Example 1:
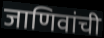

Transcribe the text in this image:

जाणिवांची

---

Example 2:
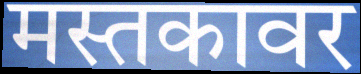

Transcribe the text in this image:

मस्तकावर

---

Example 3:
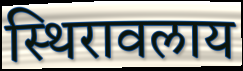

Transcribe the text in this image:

स्थिरावलाय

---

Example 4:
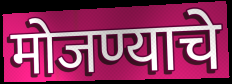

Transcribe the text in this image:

मोजण्याचे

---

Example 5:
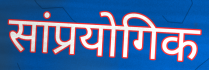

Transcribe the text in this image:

सांप्रयोगिक